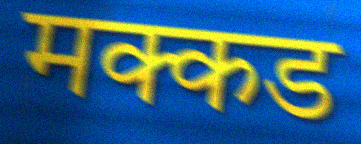
मक्कड